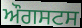
ਔਗਸਟਸ